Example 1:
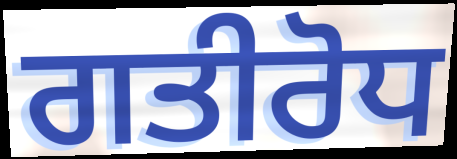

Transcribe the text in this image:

ਗਤੀਰੋਧ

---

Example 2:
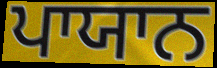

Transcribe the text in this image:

ਪਾਯਾਨ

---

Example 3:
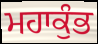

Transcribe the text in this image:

ਮਹਾਕੁੰਭ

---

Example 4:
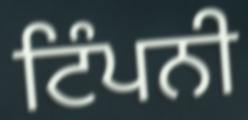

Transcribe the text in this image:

ਟਿੰਪਨੀ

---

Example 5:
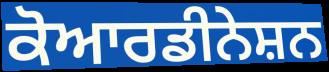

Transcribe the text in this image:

ਕੋਆਰਡੀਨੇਸ਼ਨ